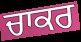
ਚਾਕਰ